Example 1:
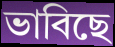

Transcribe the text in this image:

ভাবিছে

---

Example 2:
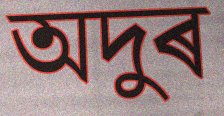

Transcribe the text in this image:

অদুৰ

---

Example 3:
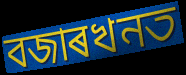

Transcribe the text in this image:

বজাৰখনত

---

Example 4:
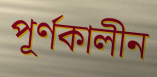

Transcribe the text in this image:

পূৰ্ণকালীন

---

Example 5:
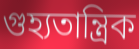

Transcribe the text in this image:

গুহ্যতান্ত্ৰিক